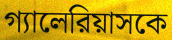
গ্যালেরিয়াসকে